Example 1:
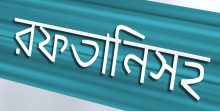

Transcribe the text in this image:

রফতানিসহ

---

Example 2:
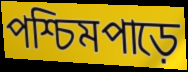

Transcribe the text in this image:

পশ্চিমপাড়ে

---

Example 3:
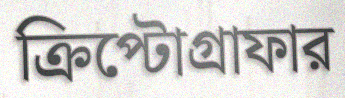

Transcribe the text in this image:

ক্রিপ্টোগ্রাফার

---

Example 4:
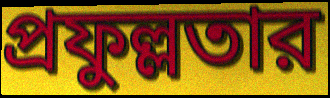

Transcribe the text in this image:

প্রফুল্লতার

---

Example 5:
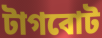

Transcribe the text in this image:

টাগবোট